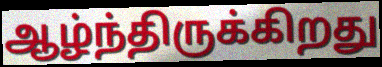
ஆழ்ந்திருக்கிறது